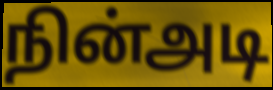
நின்அடி